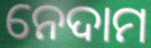
ନେଦାମ